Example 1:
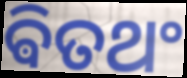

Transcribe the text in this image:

ଵିତଥଂ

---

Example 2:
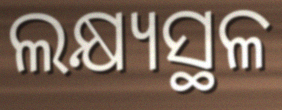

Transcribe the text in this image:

ଲକ୍ଷ୍ୟସ୍ଥଳ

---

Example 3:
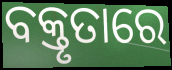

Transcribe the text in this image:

ବକ୍ତୃତାରେ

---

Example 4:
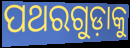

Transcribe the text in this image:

ପଥରଗୁଡ଼ାକୁ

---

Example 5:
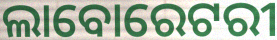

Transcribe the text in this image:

ଲାବୋରେଟରୀ